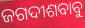
ଜଗଦୀଶବାବୁ